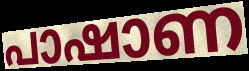
പാഷാണ